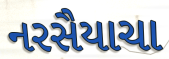
નરસૈયાચા